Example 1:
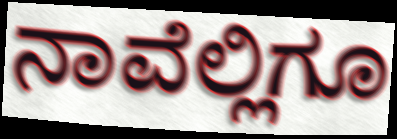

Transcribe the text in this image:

ನಾವೆಲ್ಲಿಗೂ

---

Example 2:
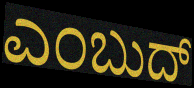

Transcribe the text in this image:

ಎಂಬುದ್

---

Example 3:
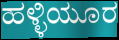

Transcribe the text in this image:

ಹಳ್ಳಿಯೂರ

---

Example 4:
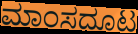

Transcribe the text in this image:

ಮಾಂಸದೂಟ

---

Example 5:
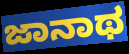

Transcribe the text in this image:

ಜಾನಾಥ